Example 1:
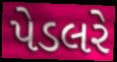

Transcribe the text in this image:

પેડલરે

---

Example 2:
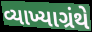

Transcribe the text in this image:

વ્યાખ્યાગ્રંથે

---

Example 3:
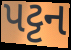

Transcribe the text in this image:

પટ્ટન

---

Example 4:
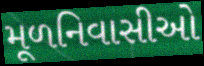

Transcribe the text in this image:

મૂળનિવાસીઓ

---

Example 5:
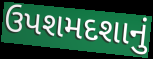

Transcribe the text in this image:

ઉપશમદશાનું